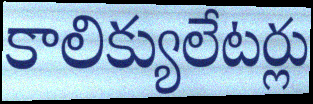
కాలిక్యులేటర్లు